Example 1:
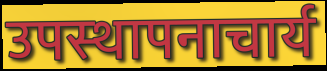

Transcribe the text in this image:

उपस्थापनाचार्य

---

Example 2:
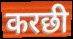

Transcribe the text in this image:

करछी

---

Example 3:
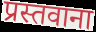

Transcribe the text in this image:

प्रस्तवाना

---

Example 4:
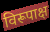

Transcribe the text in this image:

विरूपाक्ष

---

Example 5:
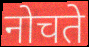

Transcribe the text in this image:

नोचते